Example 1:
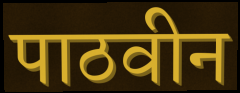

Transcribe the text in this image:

पाठवीन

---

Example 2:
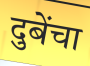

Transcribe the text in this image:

दुबेंचा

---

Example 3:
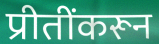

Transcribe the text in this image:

प्रीतींकरून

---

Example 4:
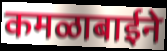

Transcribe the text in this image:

कमळाबाईने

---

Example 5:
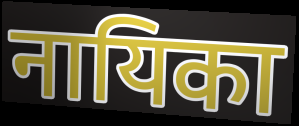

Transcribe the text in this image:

नायिका